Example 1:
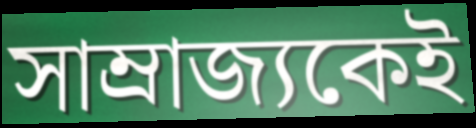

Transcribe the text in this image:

সাম্রাজ্যকেই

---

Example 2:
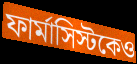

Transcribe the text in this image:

ফার্মাসিস্টকেও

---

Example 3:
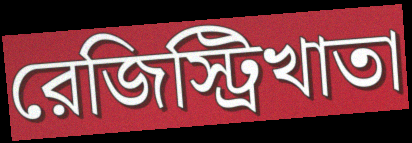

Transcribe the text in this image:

রেজিস্ট্রিখাতা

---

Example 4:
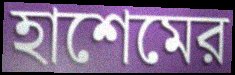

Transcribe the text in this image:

হাশেমের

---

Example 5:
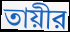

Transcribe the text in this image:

তায়ীর